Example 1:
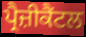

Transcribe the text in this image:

ਪ੍ਰੈਜ਼ੀਕੈਂਟਲ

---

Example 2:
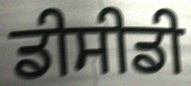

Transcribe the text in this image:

ਡੀਸੀਡੀ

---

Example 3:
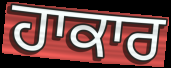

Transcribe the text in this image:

ਹਾਕਾਰ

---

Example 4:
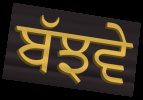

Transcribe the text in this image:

ਬੱਝਵੇ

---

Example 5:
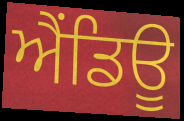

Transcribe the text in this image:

ਐਂਡਿਊ